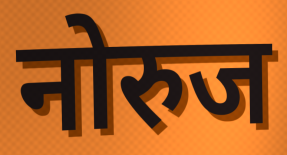
नोरुज